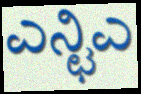
ಎನ್ಟಿಎ